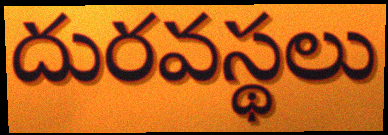
దురవస్థలు